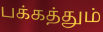
பக்கத்தும்